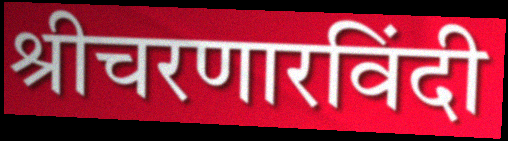
श्रीचरणारविंदी